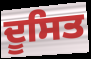
ਦੂਸਿਤ